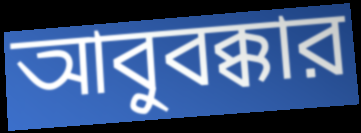
আবুবক্কার